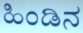
ಹಿಂಡಿನ